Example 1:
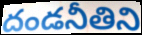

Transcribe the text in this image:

దండనీతిని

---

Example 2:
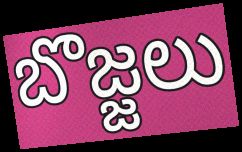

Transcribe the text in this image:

బొజ్జలు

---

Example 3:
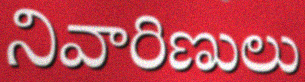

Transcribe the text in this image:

నివారిణులు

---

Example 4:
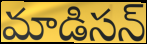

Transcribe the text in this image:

మాడిసన్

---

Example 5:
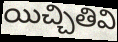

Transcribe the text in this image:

యిచ్చితివి